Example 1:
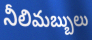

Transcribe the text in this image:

నీలిమబ్బులు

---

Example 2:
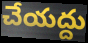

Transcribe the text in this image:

చేయద్దు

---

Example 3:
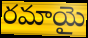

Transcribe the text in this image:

రమాయై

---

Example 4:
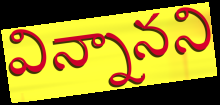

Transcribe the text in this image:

విన్నానని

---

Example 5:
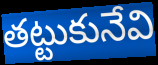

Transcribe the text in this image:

తట్టుకునేవి